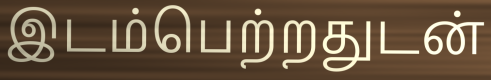
இடம்பெற்றதுடன்